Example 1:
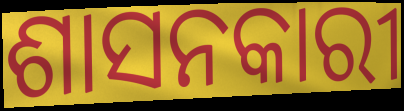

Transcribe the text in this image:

ଶାସନକାରୀ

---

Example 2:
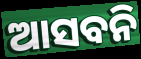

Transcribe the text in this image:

ଆସବନି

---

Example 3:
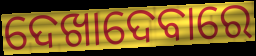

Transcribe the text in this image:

ଦେଖାଦେବାରେ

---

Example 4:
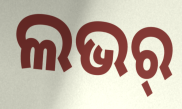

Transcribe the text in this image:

ଲଭର୍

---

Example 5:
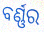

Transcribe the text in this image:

ବର୍ଣ୍ଣର